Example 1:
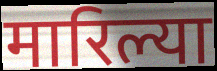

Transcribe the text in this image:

मारिल्या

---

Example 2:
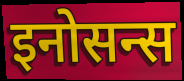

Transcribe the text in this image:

इनोसन्स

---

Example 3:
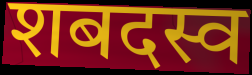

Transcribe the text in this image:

शबदस्व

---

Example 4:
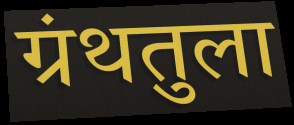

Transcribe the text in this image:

ग्रंथतुला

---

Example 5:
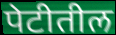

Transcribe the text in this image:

पेटीतील